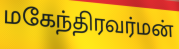
மகேந்திரவர்மன்